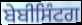
ਬੇਬੀਸਿੰਟਗ